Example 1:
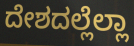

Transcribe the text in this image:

ದೇಶದಲ್ಲೆಲ್ಲಾ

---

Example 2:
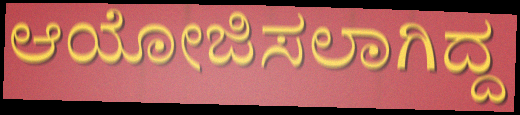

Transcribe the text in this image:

ಆಯೋಜಿಸಲಾಗಿದ್ದ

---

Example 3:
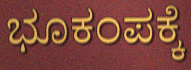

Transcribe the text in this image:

ಭೂಕಂಪಕ್ಕೆ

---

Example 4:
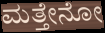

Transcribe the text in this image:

ಮತ್ತೇನೋ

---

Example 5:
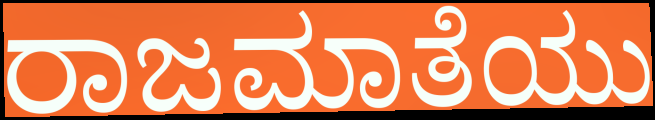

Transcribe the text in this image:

ರಾಜಮಾತೆಯು